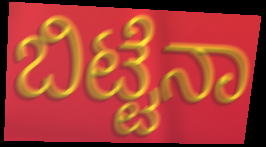
ಬಿಟ್ಟೆನಾ